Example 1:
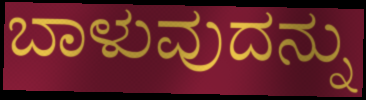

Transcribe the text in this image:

ಬಾಳುವುದನ್ನು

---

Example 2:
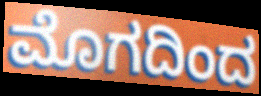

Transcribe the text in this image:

ಮೊಗದಿಂದ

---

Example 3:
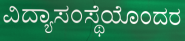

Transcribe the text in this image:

ವಿದ್ಯಾಸಂಸ್ಥೆಯೊಂದರ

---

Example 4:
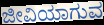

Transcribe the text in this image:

ಜೀವಿಯಾಗುವ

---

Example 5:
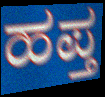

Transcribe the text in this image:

ಹಪ್ತ